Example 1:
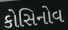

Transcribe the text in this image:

કોસિનોવ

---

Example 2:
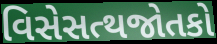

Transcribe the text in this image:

વિસેસત્થજોતકો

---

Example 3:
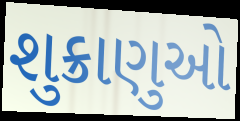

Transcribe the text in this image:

શુક્રાણુઓ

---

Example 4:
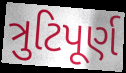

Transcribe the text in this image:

ત્રુટિપૂર્ણ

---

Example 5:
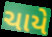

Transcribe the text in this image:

ચાયે